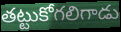
తట్టుకోగలిగాడు